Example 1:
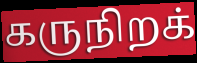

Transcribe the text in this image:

கருநிறக்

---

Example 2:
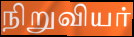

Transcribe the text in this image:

நிறுவியர்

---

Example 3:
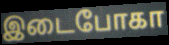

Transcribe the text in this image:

இடைபோகா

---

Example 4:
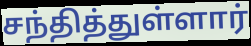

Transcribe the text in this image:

சந்தித்துள்ளார்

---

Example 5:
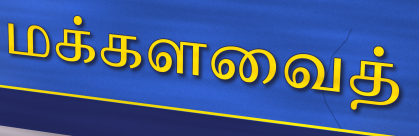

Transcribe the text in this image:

மக்களவைத்